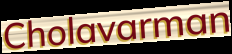
Cholavarman